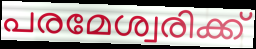
പരമേശ്വരിക്ക്